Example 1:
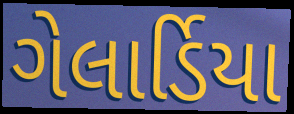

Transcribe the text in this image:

ગેલાર્ડિયા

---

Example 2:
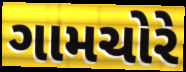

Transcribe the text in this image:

ગામચોરે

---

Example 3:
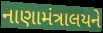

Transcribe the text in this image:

નાણામંત્રાલયને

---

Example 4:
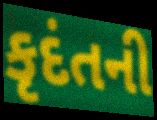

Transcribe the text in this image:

કૃદંતની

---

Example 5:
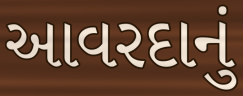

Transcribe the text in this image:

આવરદાનું